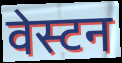
वेस्टन